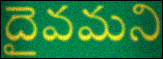
దైవమని